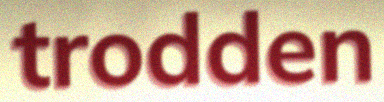
trodden